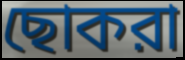
ছোকরা